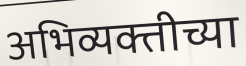
अभिव्यक्तीच्या